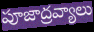
పూజాద్రవ్యాలు